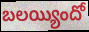
బలయ్యిందో